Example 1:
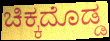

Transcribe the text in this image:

ಚಿಕ್ಕದೊಡ್ಡ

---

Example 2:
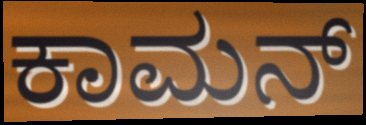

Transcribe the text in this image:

ಕಾಮನ್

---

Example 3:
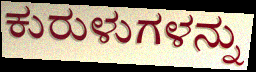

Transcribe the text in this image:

ಕುರುಳುಗಳನ್ನು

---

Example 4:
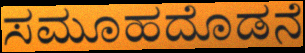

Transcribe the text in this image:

ಸಮೂಹದೊಡನೆ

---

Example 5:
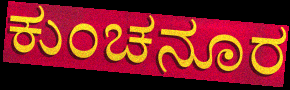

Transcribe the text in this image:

ಕುಂಚನೂರ